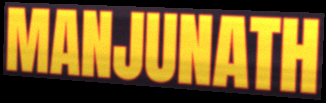
MANJUNATH